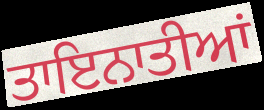
ਤਾਇਨਾਤੀਆਂ